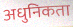
अधुनिकता